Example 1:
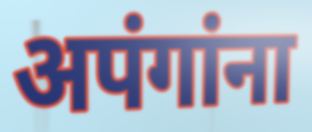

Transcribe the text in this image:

अपंगांना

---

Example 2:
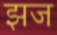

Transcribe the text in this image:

झज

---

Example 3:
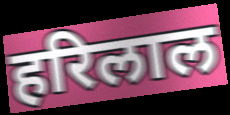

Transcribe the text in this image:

हरिलाल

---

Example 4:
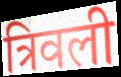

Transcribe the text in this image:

त्रिवली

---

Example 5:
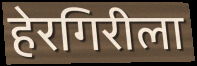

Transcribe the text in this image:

हेरगिरीला